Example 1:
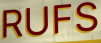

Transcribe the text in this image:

RUFS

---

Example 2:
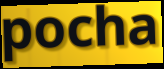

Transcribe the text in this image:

pocha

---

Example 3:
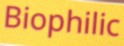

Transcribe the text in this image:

Biophilic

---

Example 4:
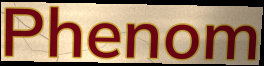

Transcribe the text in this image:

Phenom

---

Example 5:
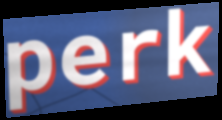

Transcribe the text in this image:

perk